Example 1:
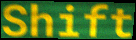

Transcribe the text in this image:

Shift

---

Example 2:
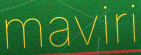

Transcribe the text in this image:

maviri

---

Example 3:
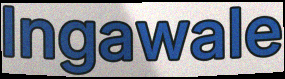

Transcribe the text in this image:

Ingawale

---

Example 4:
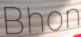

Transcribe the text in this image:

Bhon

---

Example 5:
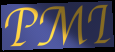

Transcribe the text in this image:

PMI